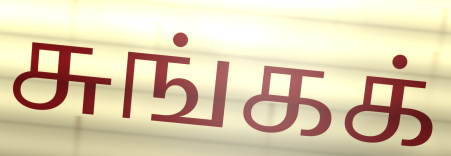
சுங்கக்